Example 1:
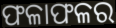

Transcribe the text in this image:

ଫଳାଫଳର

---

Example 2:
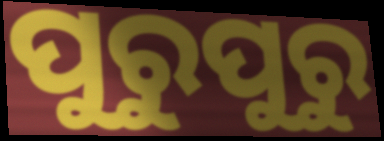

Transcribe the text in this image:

ପୁରୁପୁରୁ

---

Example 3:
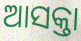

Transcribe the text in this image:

ଆସକ୍ତା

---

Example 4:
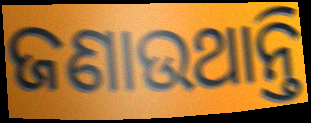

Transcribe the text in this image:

ଜଣାଉଥାନ୍ତି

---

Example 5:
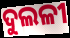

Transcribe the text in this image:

ଦୁଲଳୀ